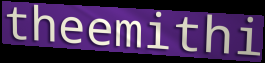
theemithi